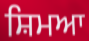
ਸ਼ਿਮਆ